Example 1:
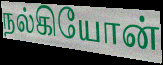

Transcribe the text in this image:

நல்கியோன்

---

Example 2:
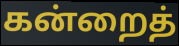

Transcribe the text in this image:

கன்றைத்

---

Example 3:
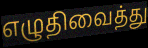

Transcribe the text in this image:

எழுதிவைத்து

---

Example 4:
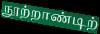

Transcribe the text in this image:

நூற்றாண்டிற்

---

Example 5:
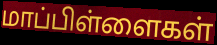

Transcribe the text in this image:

மாப்பிள்ளைகள்